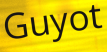
Guyot